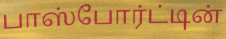
பாஸ்போர்ட்டின்